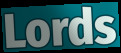
Lords